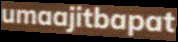
umaajitbapat